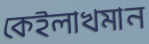
কেইলাখমান